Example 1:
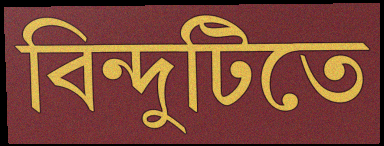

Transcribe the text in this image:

বিন্দুটিতে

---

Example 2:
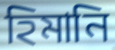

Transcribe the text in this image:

হিমানি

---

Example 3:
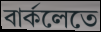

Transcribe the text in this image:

বার্কলেতে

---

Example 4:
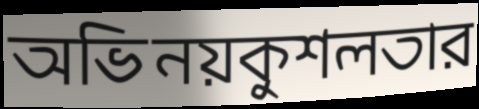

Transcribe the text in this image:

অভিনয়কুশলতার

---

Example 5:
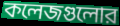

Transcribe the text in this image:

কলেজগুলোর